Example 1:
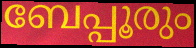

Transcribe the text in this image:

ബേപ്പൂരും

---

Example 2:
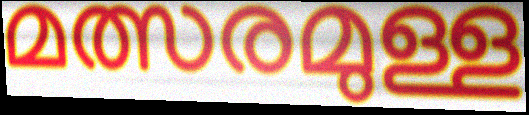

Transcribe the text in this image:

മത്സരമുള്ള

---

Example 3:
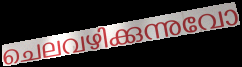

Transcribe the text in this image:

ചെലവഴിക്കുന്നുവോ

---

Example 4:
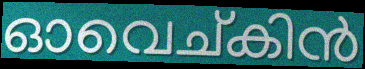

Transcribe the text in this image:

ഓവെച്കിൻ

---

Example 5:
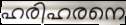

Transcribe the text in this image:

ഹരിഹരനെ